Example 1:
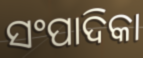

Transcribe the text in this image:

ସଂପାଦିକା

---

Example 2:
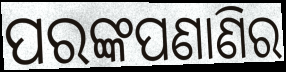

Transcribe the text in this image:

ପରଙ୍କପଣାଣିର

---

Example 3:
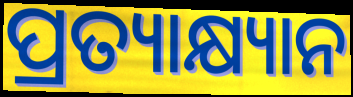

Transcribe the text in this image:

ପ୍ରତ୍ୟାକ୍ଷ୍ୟାନ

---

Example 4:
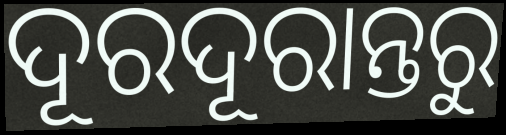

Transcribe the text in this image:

ଦୂରଦୂରାନ୍ତରୁ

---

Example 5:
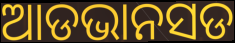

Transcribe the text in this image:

ଆଡଭାନସଡ